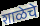
शाळेचे